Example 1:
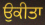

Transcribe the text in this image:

ਉਕੀਤਾ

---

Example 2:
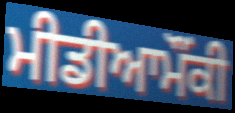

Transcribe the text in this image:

ਮੀਡੀਆਮੌਂਕੀ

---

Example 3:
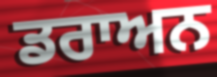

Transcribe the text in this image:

ਡਰਾਅਨ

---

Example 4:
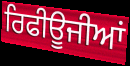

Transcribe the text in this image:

ਰਿਫੀਊਜੀਆਂ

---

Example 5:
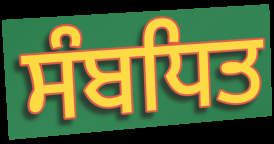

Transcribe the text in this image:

ਸੰਬਧਿਤ